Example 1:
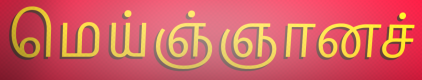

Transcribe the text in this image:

மெய்ஞ்ஞானச்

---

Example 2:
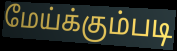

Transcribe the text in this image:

மேய்க்கும்படி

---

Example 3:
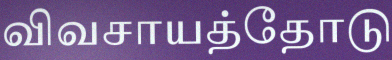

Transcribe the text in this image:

விவசாயத்தோடு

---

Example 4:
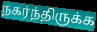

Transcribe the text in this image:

நகர்ந்திருக்க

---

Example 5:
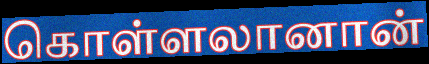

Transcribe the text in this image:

கொள்ளலானான்